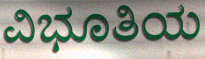
ವಿಭೂತಿಯ